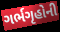
ગર્ભગૃહોની